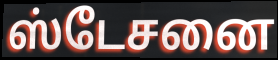
ஸ்டேசனை